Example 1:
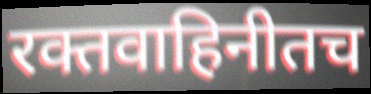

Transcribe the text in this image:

रक्तवाहिनीतच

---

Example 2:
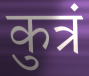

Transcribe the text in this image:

कुत्रं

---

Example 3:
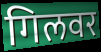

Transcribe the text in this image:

गिलवर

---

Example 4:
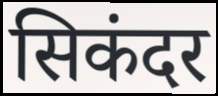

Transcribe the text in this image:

सिकंदर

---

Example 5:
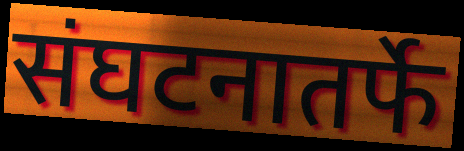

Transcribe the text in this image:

संघटनातर्फे